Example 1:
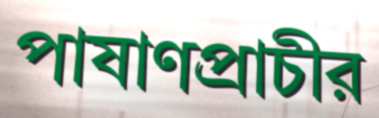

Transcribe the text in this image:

পাষাণপ্রাচীর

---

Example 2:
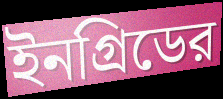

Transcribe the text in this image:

ইনগ্রিডের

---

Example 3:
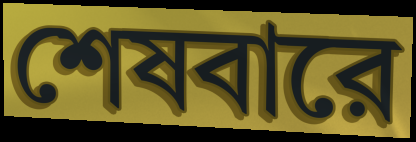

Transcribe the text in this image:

শেষবারে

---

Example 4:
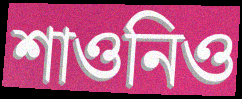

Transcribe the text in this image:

শাওনিও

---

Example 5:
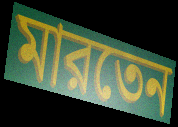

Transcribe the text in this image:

মারতেন